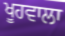
ਖੂਹਵਾਲਾ